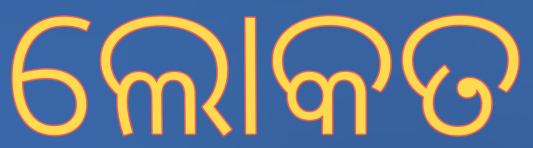
ଲୋକତ